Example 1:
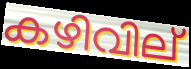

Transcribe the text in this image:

കഴിവില്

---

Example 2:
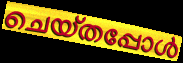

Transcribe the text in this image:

ചെയ്‌തപ്പോൾ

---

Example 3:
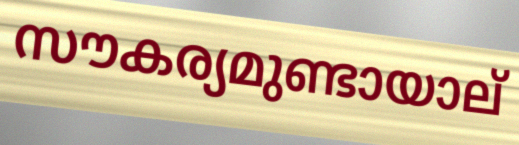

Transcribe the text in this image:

സൗകര്യമുണ്ടായാല്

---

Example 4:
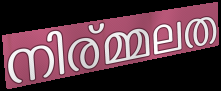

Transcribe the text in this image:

നിര്മ്മലത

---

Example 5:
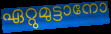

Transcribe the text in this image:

ഏറ്റുമുട്ടാനോ